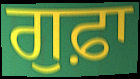
ਗੁਫ਼ਾ